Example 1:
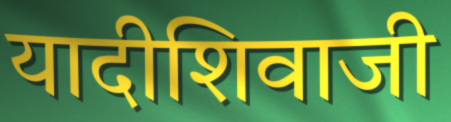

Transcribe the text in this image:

यादीशिवाजी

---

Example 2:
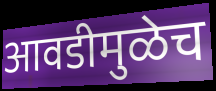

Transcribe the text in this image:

आवडीमुळेच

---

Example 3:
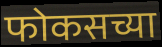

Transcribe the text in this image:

फोकसच्या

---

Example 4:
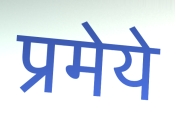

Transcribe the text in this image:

प्रमेये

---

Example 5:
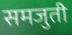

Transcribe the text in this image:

समजुती